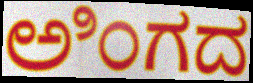
ಅಿಂಗದ